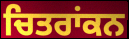
ਚਿਤਰਾਂਕਨ